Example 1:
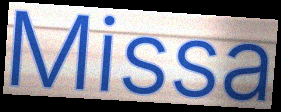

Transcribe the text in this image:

Missa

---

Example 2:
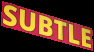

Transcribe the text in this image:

SUBTLE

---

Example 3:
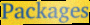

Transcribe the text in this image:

Packages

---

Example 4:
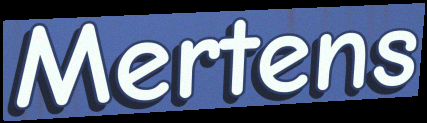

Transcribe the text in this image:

Mertens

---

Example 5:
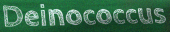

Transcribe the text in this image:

Deinococcus